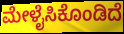
ಮೇಳೈಸಿಕೊಂಡಿದೆ